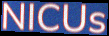
NICUs